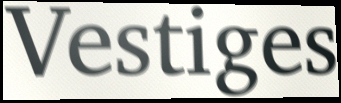
Vestiges